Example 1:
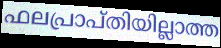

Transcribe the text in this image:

ഫലപ്രാപ്തിയില്ലാത്ത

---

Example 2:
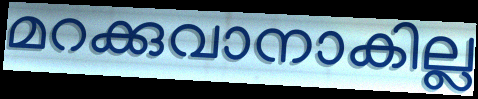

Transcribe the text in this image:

മറക്കുവാനാകില്ല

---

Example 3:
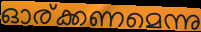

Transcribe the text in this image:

ഓര്ക്കണമെന്നു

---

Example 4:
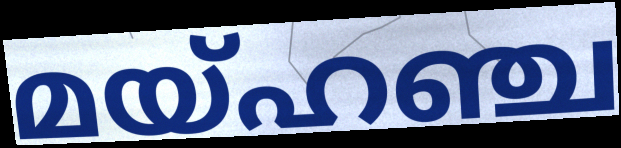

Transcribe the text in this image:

മയ്ഹഞ്ച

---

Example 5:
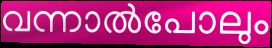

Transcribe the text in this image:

വന്നാൽപോലും